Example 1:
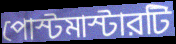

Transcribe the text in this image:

পোস্টমাস্টারটি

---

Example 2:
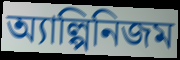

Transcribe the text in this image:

অ্যাল্পিনিজম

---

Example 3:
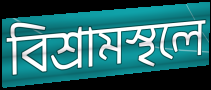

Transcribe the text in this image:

বিশ্রামস্থলে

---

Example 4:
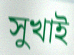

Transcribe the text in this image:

সুখাই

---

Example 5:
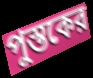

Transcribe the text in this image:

পুস্তকের